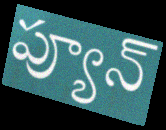
ప్యూన్